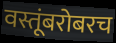
वस्तूंबरोबरच